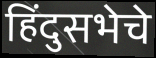
हिंदुसभेचे